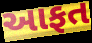
આફત